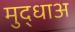
मुद्धाअ